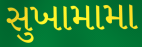
સુખામામા